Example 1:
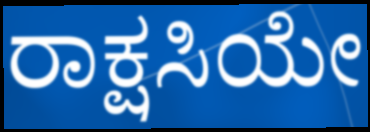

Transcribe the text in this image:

ರಾಕ್ಷಸಿಯೇ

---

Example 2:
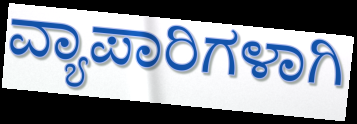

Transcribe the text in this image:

ವ್ಯಾಪಾರಿಗಳಾಗಿ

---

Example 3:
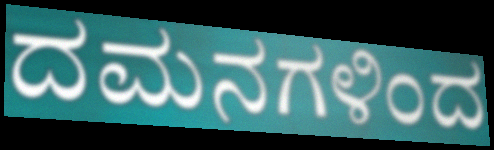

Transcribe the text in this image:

ದಮನಗಳಿಂದ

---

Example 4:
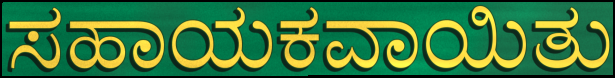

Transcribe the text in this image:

ಸಹಾಯಕವಾಯಿತು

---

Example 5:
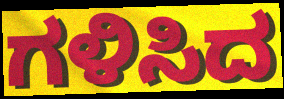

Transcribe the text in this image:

ಗಳಿಸಿದ